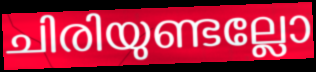
ചിരിയുണ്ടല്ലോ